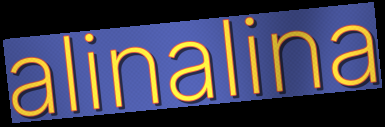
alinalina